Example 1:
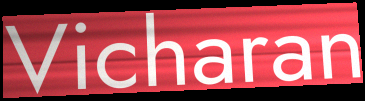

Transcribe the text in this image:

Vicharan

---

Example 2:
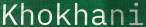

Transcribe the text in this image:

Khokhani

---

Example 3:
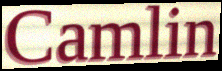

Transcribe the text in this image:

Camlin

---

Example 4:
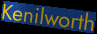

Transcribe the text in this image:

Kenilworth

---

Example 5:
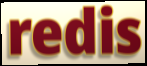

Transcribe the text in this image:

redis